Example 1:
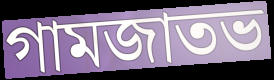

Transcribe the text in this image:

গামজাতভ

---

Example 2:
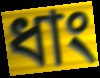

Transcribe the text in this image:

ধাং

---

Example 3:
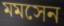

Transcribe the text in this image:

মমসেন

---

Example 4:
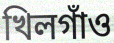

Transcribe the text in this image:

খিলগাঁও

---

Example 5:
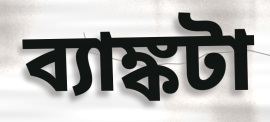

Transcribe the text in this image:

ব্যাঙ্কটা